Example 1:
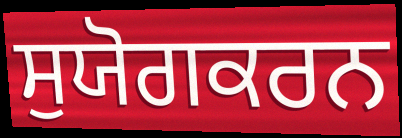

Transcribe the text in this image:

ਸੁਯੋਗਕਰਨ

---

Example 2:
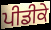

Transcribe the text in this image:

ਪੀਡੀਕੇ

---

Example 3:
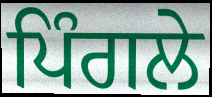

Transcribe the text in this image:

ਪਿੰਗਲੇ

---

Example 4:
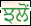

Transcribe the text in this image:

ਝਲੋਂ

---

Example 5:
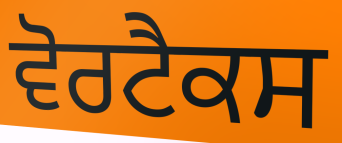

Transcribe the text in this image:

ਵੋਰਟੈਕਸ